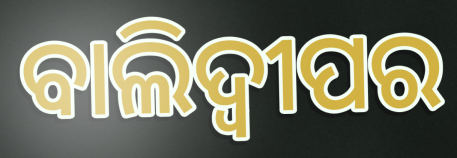
ବାଲିଦ୍ୱୀପର